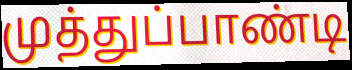
முத்துப்பாண்டி